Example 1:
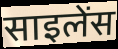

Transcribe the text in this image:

साइलेंस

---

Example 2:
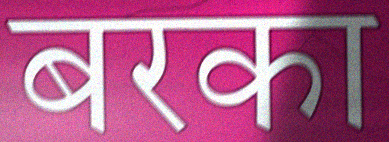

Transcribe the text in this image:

बरका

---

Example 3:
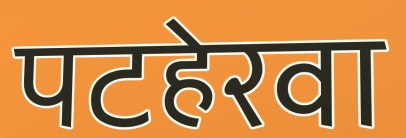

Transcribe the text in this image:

पटहेरवा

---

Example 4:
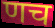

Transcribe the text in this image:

णच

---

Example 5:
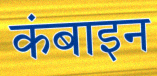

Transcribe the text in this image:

कंबाइन